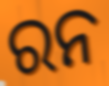
ରନ